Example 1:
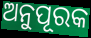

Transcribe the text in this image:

ଅନୁପୂରକ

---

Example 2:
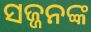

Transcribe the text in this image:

ସଜ୍ଜନଙ୍କ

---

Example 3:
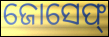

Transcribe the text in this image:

ଜୋସେଫ୍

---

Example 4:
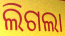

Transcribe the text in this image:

ଲିଗଲା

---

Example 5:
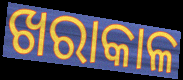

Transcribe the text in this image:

ଖରାକାଳ